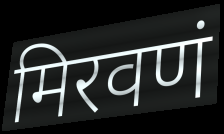
मिरवणं